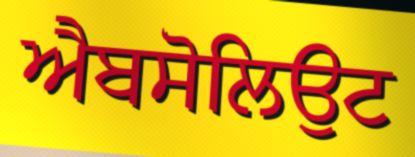
ਐਬਸੋਲਿਉਟ